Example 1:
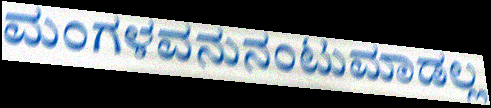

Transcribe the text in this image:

ಮಂಗಳವನುನಂಟುಮಾಡಲ್ಲ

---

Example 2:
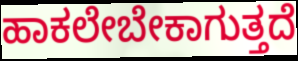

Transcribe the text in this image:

ಹಾಕಲೇಬೇಕಾಗುತ್ತದೆ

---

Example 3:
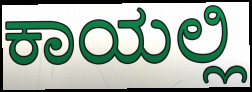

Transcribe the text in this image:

ಕಾಯಲ್ಲಿ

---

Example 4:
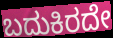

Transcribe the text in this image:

ಬದುಕಿರದೇ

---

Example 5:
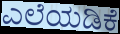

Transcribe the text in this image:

ಎಲೆಯಡಿಕೆ